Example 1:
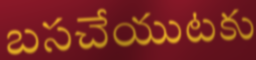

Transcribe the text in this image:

బసచేయుటకు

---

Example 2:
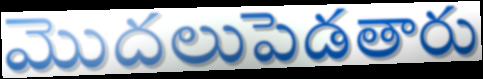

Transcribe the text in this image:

మొదలుపెడతారు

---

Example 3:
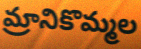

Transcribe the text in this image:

మ్రానికొమ్మల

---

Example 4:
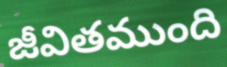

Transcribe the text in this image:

జీవితముంది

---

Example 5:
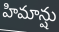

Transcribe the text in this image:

హిమాన్షు